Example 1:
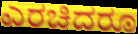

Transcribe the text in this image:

ಎರಚಿದರೂ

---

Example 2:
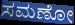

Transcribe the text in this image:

ಸಮಣೋ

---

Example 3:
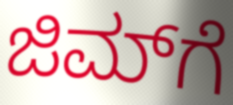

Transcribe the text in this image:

ಜಿಮ್‌ಗೆ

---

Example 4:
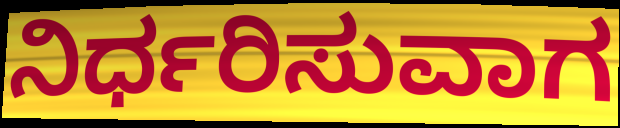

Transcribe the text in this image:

ನಿರ್ಧರಿಸುವಾಗ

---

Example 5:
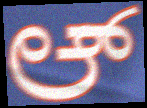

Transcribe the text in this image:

ಆ್